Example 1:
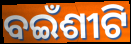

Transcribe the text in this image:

ବଇଁଶୀଟି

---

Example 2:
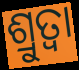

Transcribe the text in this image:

ଶ୍ରୁତ୍ଵା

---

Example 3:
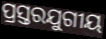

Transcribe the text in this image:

ପ୍ରସ୍ତରଯୁଗୀୟ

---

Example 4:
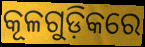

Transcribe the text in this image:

କୂଳଗୁଡ଼ିକରେ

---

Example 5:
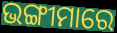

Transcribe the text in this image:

ଭଙ୍ଗୀମାରେ